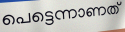
പെട്ടെന്നാണത്